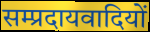
सम्प्रदायवादियों